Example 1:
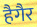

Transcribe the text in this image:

हैगैर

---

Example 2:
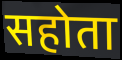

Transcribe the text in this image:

सहोता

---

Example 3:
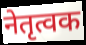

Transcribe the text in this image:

नेतृत्वक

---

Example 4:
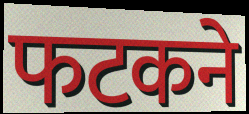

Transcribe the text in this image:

फटकने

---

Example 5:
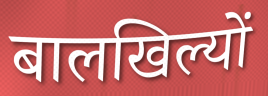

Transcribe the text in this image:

बालखिल्यों